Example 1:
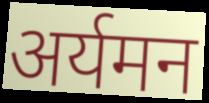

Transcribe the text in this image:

अर्यमन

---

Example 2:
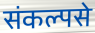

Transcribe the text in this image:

संकल्पसे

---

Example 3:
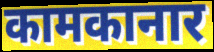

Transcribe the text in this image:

कामकानार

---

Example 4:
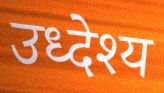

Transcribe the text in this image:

उध्देश्य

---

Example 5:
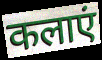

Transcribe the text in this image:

कलाएं